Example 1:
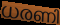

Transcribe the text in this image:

ധരണി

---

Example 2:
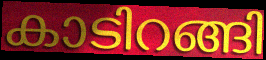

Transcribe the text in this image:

കാടിറങ്ങി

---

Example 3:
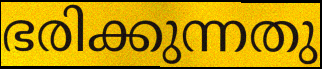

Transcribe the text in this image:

ഭരിക്കുന്നതു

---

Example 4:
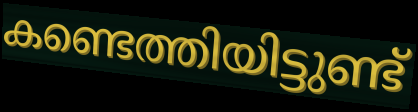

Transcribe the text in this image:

കണ്ടെത്തിയിട്ടുണ്ട്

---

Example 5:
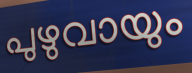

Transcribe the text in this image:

പുഴുവായും